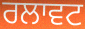
ਰਲਾਵਟ